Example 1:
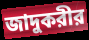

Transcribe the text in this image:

জাদুকরীর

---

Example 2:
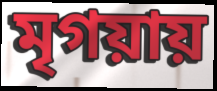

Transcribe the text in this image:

মৃগয়ায়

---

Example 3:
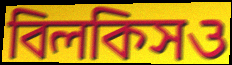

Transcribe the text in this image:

বিলকিসও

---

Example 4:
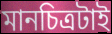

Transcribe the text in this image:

মানচিত্রটাই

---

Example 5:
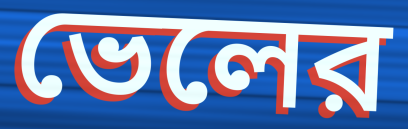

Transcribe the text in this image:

ভেলের